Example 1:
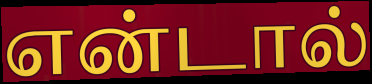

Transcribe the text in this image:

என்டால்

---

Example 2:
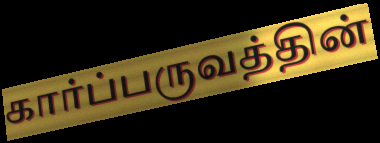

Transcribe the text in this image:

கார்ப்பருவத்தின்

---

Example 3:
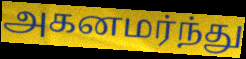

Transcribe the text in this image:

அகனமர்ந்து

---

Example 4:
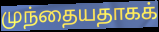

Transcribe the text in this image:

முந்தையதாகக்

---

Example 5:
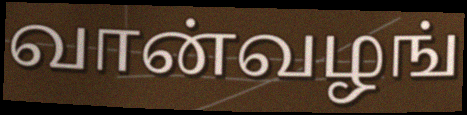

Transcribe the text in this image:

வான்வழங்